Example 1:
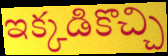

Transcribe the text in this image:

ఇక్కడికొచ్చి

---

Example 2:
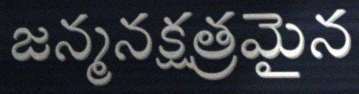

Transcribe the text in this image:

జన్మనక్షత్రమైన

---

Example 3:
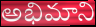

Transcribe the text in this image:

అభిమాని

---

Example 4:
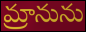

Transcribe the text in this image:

మ్రానును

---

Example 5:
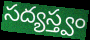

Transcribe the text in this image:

సద్యస్త్వం